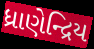
ધ્રાણેન્દ્રિય